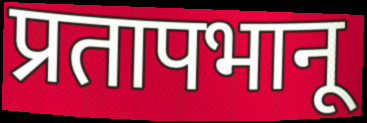
प्रतापभानू